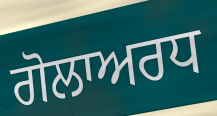
ਗੋਲਾਅਰਧ